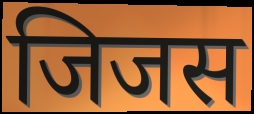
जिजस